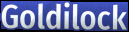
Goldilock